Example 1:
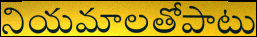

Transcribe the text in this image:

నియమాలతోపాటు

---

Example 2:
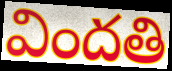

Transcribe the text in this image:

విందతి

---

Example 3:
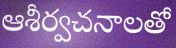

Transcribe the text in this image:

ఆశీర్వచనాలతో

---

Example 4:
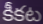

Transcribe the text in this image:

కీకట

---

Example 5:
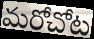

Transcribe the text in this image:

మరోచోట